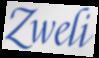
Zweli